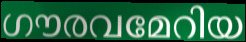
ഗൗരവമേറിയ